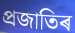
প্ৰজাতিৰ